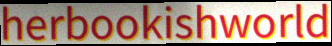
herbookishworld